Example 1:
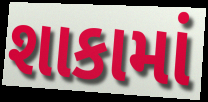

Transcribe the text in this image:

શાકામાં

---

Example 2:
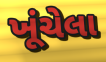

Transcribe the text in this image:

ખૂંચેલા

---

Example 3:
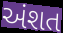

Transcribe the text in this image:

અંશત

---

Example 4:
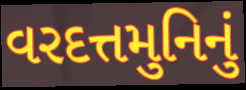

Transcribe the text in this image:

વરદત્તમુનિનું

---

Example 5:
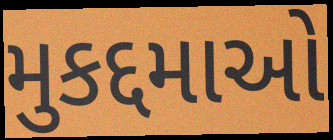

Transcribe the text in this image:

મુકદ્દમાઓ